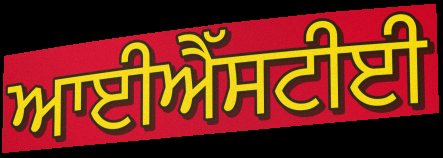
ਆਈਐੱਸਟੀਈ